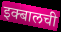
इक्बालची